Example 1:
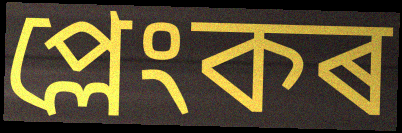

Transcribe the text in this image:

প্লেংকৰ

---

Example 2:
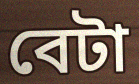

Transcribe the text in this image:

বেটা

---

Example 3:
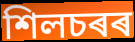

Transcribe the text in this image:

শিলচৰৰ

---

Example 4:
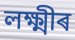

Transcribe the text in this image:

লক্ষ্মীৰ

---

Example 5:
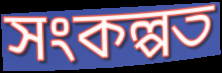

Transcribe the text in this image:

সংকল্পত